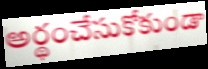
అర్థంచేసుకోకుండా